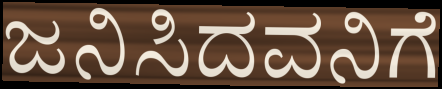
ಜನಿಸಿದವನಿಗೆ